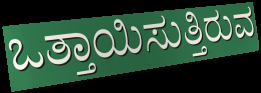
ಒತ್ತಾಯಿಸುತ್ತಿರುವ